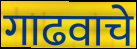
गाढवाचे